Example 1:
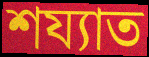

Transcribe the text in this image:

শয্যাত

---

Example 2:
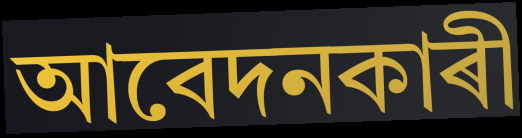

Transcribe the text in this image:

আবেদনকাৰী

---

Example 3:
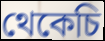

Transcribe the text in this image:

থেকেচি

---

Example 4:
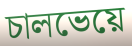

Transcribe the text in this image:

চালভেয়ে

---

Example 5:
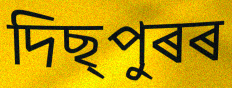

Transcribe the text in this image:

দিছ্পুৰৰ